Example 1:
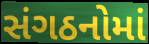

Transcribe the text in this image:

સંગઠનોમાં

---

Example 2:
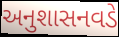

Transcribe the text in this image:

અનુશાસનવડે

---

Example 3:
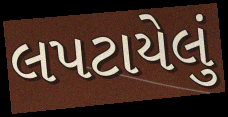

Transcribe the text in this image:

લપટાયેલું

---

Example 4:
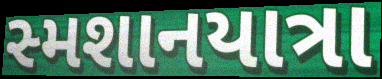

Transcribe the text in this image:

સ્મશાનયાત્રા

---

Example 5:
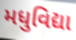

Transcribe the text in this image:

મધુવિદ્યા